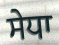
ਸੇਧਾ